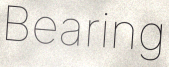
Bearing